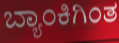
ಬ್ಯಾಂಕಿಗಿಂತ